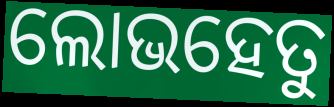
ଲୋଭହେତୁ